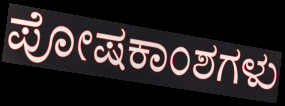
ಪೋಷಕಾಂಶಗಳು